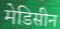
मेडिसीन